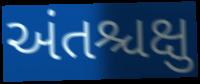
અંતશ્ચક્ષુ